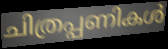
ചിത്രപ്പണികൾ